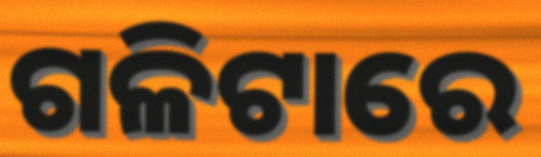
ଗଳିଟାରେ